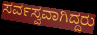
ಸರ್ವಸ್ವವಾಗಿದ್ದರು